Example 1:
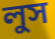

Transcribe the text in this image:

লুস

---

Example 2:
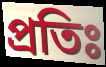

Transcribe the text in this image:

প্রতিঃ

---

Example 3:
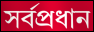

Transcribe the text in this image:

সর্বপ্রধান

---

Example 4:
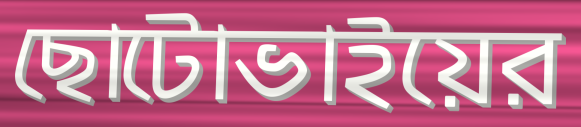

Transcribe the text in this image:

ছোটোভাইয়ের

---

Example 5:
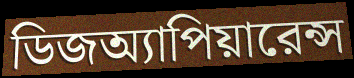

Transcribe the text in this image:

ডিজঅ্যাপিয়ারেন্স